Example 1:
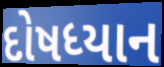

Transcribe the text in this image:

દોષધ્યાન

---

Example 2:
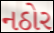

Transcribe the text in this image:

નઠોર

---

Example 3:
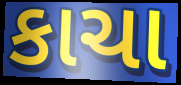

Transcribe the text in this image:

કાચા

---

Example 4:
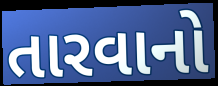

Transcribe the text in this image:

તારવાનો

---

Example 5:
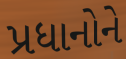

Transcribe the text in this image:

પ્રધાનોને